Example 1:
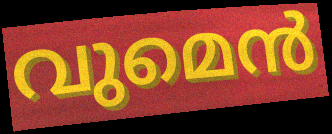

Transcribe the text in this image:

വുമെൻ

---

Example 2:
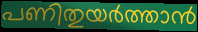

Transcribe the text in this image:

പണിതുയർത്താൻ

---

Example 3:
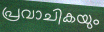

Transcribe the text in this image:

പ്രവാചികയും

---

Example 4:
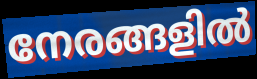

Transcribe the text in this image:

നേരങ്ങളിൽ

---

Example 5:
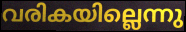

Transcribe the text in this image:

വരികയില്ലെന്നു